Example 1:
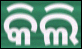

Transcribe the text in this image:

କିଲି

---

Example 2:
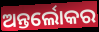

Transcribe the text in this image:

ଅନ୍ତର୍ଲୋକର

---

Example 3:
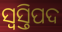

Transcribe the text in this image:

ସ୍ବସ୍ତିପଦ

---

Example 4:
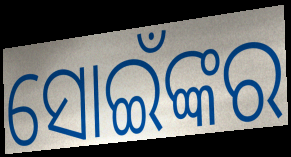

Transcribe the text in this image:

ସୋଇଁଙ୍କର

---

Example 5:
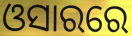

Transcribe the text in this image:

ଓସାରରେ